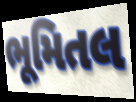
ભૂમિતલ